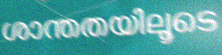
ശാന്തതയിലൂടെ